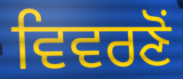
ਵਿਵਰਣੋਂ